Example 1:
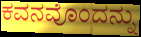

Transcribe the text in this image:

ಕವನವೊಂದನ್ನು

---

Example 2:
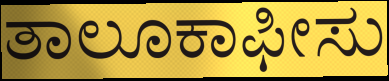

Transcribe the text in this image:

ತಾಲೂಕಾಫೀಸು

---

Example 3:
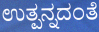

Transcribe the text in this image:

ಉತ್ಪನ್ನದಂತೆ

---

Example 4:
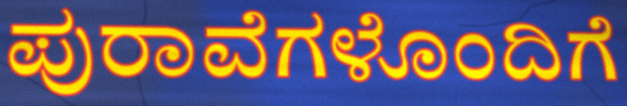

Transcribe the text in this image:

ಪುರಾವೆಗಳೊಂದಿಗೆ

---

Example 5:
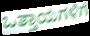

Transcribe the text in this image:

ಒತ್ತಾಯಗಳಿಗೆ